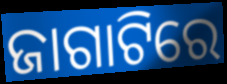
ଜାଗାଟିରେ